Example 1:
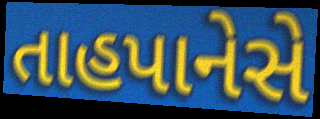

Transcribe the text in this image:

તાહપાનેસે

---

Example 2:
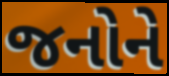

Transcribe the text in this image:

જનોને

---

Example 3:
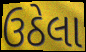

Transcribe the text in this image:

ઉઠેલા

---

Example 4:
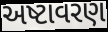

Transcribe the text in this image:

અષ્ટાવરણ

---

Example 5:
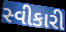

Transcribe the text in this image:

સ્વીકારી